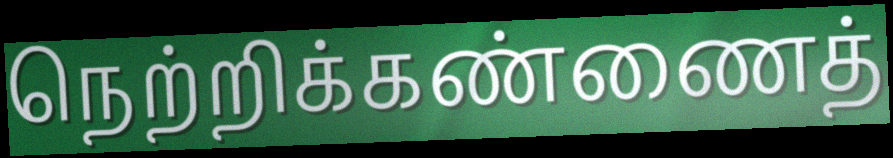
நெற்றிக்கண்ணைத்